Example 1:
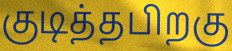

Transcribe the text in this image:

குடித்தபிறகு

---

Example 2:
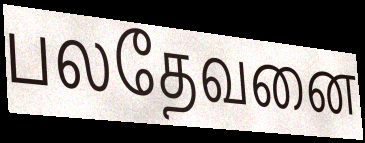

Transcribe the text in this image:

பலதேவனை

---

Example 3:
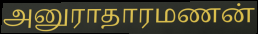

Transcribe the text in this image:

அனுராதாரமணன்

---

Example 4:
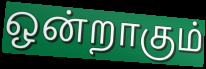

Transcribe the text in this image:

ஒன்றாகும்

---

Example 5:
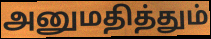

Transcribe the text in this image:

அனுமதித்தும்